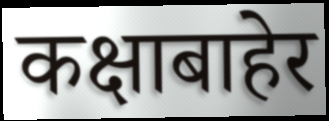
कक्षाबाहेर